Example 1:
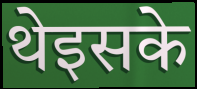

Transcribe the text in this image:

थेइसके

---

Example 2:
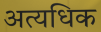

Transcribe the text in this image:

अत्यधिक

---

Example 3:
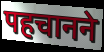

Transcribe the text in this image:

पहचानने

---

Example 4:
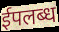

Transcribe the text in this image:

ईपलब्ध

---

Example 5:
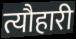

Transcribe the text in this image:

त्यौहारी